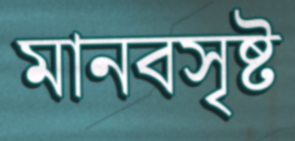
মানবসৃষ্ট